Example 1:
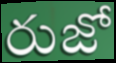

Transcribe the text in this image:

రుజో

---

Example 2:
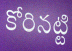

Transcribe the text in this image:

కోరినట్టి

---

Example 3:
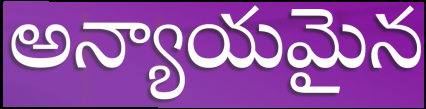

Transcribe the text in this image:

అన్యాయమైన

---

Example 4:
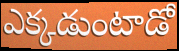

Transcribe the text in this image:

ఎక్కడుంటాడో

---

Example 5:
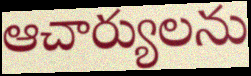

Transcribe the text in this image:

ఆచార్యులను